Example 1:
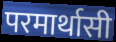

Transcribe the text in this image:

परमार्थासी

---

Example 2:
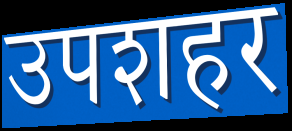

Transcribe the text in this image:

उपशहर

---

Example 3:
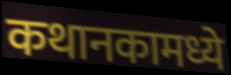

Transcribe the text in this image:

कथानकामध्ये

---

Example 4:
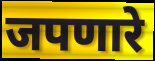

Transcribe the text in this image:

जपणारे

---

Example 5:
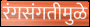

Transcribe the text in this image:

रंगसंगतीमुळे